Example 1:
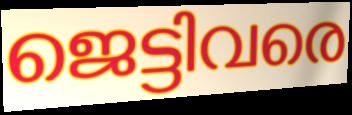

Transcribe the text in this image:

ജെട്ടിവരെ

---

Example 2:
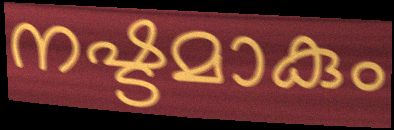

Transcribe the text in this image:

നഷ്ടമാകും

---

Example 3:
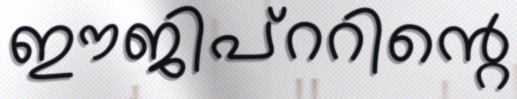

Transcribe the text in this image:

ഈജിപ്ററിന്റെ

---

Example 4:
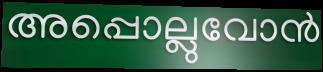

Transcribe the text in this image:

അപ്പൊല്ലുവോൻ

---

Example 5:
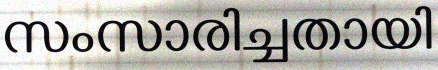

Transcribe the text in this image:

സംസാരിച്ചതായി